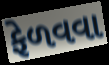
ફેળવવા